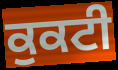
ਕੁਕਟੀ